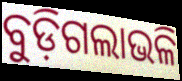
ବୁଡ଼ିଗଲାଭଳି